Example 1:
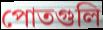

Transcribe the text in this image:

পোতগুলি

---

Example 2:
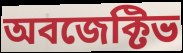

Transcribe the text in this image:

অবজেক্টিভ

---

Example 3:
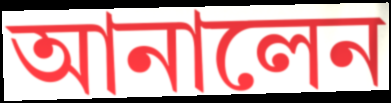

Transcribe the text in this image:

আনালেন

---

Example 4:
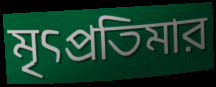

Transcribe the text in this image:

মৃৎপ্রতিমার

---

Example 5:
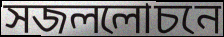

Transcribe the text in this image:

সজললোচনে